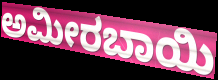
ಅಮೀರಬಾಯಿ